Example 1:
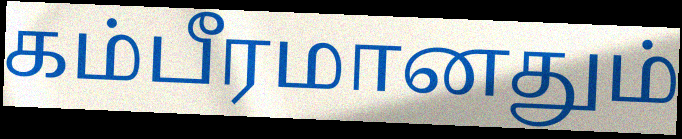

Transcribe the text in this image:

கம்பீரமானதும்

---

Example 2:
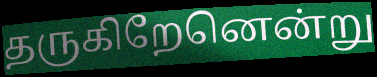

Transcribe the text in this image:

தருகிறேனென்று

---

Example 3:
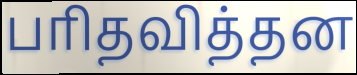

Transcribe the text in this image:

பரிதவித்தன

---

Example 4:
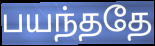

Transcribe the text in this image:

பயந்ததே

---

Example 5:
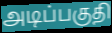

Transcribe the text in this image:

அடிப்பகுதி